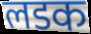
लडक